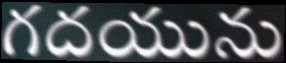
గదయును